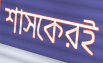
শাসকেরই